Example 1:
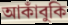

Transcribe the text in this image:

আকাঁবুকি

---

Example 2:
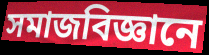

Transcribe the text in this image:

সমাজবিজ্ঞানে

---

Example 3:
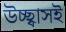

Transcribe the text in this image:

উচ্ছ্বাসই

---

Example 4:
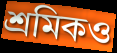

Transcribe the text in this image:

শ্রমিকও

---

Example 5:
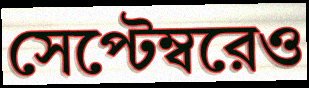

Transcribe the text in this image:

সেপ্টেম্বরেও